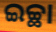
ଇଚ୍ଛା